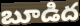
బూడిద